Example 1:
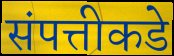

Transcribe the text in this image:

संपत्तीकडे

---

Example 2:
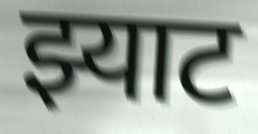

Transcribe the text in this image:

झ्याट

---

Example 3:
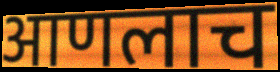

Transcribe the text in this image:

आणलाच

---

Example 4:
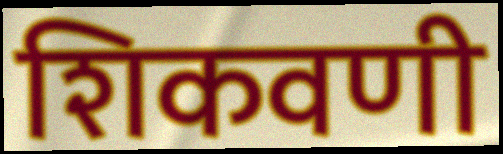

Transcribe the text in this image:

शिकवणी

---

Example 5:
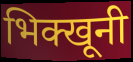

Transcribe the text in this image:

भिक्खूनी